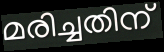
മരിച്ചതിന്